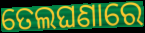
ତେଲଘଣାରେ